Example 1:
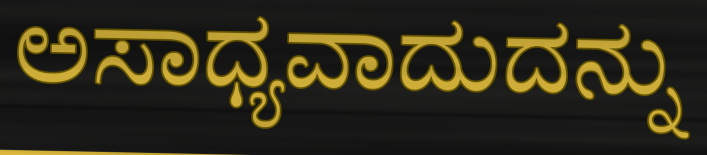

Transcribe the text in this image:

ಅಸಾಧ್ಯವಾದುದನ್ನು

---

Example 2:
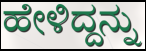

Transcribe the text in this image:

ಹೇಳಿದ್ದನ್ನು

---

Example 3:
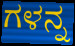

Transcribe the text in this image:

ಗಳನ್ನ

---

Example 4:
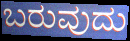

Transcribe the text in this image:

ಬರುವುದು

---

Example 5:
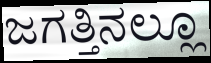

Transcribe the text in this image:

ಜಗತ್ತಿನಲ್ಲೂ